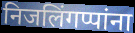
निजलिंगप्पांना